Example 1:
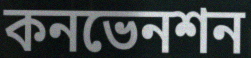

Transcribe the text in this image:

কনভেনশন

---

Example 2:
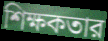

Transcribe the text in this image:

শিক্ষকতার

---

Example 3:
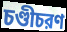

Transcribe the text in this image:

চণ্ডীচরণ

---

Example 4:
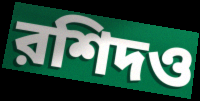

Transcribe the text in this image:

রশিদও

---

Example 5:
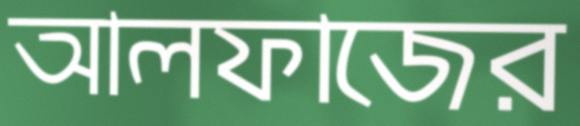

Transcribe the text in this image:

আলফাজের